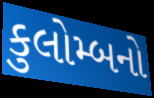
કુલોમ્બનો